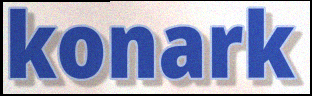
konark